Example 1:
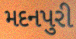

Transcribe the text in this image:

મદનપુરી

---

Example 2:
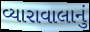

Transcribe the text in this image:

વ્યારાવાલાનું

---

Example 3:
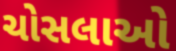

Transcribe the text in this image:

ચોસલાઓ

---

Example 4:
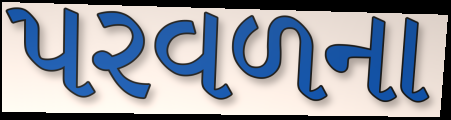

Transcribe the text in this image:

પરવળના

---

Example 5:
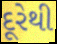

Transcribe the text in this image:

દૂરેથી